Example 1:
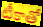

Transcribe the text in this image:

టీకాతో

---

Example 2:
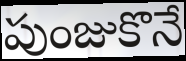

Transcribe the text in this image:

పుంజుకొనే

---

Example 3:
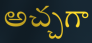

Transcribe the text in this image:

అచ్చగా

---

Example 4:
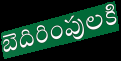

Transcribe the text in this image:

బెదిరింపులకి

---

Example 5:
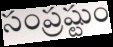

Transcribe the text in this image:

సంప్రష్టుం